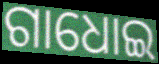
ଗାଧୋଇ